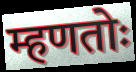
म्हणतोः